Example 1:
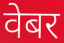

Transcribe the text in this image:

वेबर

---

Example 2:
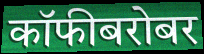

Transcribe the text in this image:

कॉफीबरोबर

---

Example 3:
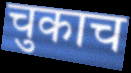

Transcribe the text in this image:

चुकाच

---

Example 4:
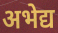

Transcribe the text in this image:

अभेद्य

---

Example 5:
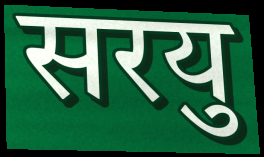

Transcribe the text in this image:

सरयु